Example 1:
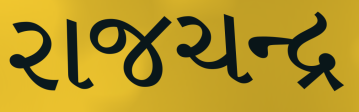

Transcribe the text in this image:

રાજચન્દ્ર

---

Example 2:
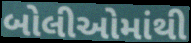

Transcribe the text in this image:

બોલીઓમાંથી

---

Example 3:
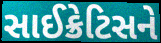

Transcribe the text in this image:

સાઈક્રેટિસને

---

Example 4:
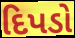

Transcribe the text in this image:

દિપડો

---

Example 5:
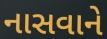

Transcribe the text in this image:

નાસવાને